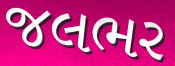
જલભર